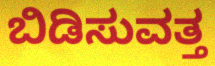
ಬಿಡಿಸುವತ್ತ